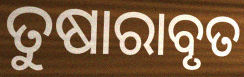
ତୁଷାରାବୃତ